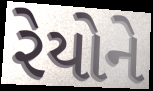
રેયોને